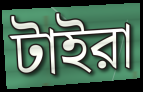
টাইরা